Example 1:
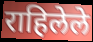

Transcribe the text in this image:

राहिलेले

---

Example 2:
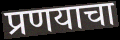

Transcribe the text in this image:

प्रणयाचा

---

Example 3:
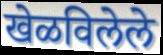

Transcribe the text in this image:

खेळविलेले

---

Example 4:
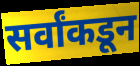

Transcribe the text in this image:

सर्वांकडून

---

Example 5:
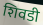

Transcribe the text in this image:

शिवडी